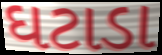
ઘટાડા